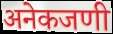
अनेकजणी